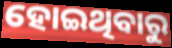
ହୋଇଥିବାରୁ